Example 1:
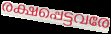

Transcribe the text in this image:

രക്ഷപ്പെട്ടവരേ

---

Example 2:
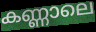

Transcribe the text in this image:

കണ്ണാലെ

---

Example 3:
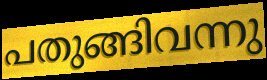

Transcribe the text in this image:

പതുങ്ങിവന്നു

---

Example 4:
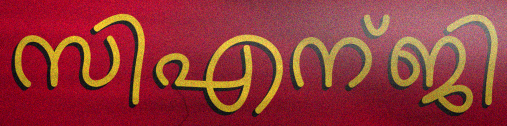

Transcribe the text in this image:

സിഎന്ജി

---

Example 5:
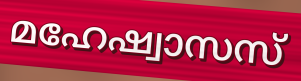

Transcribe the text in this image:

മഹേഷ്വാസസ്